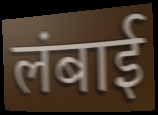
लंबाई